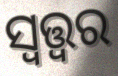
ସ୍ୱତ୍ତ୍ୱର